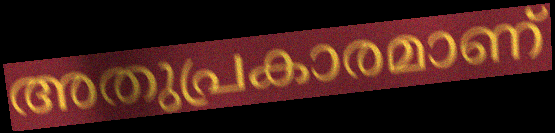
അതുപ്രകാരമാണ്